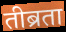
तीब्रता